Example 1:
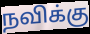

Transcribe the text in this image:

நவிக்கு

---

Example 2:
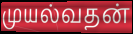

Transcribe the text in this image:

முயல்வதன்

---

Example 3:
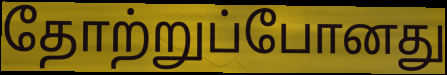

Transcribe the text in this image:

தோற்றுப்போனது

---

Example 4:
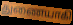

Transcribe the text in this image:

துணையாகி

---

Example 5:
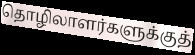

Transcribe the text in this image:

தொழிலாளர்களுக்குத்